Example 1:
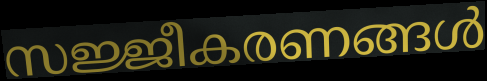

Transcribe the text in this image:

സജ്ജീകരണങ്ങൾ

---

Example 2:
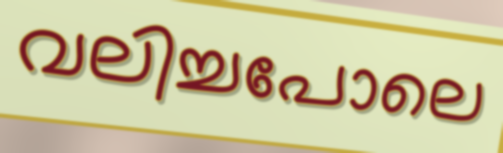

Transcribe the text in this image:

വലിച്ചപോലെ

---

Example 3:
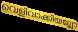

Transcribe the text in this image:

വെളിവാക്കിയല്ലോ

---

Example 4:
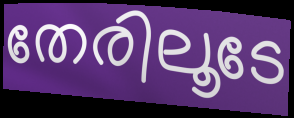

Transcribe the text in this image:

തേരിലൂടേ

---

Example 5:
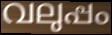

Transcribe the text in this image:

വലുപ്പം